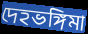
দেহভঙ্গিমা